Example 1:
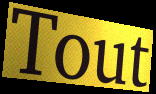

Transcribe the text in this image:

Tout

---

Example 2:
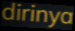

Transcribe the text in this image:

dirinya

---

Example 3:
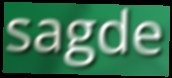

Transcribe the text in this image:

sagde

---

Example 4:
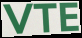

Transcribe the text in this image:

VTE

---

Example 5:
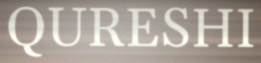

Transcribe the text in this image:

QURESHI